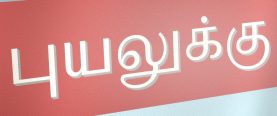
புயலுக்கு